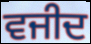
ਵਜੀਦ